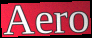
Aero